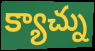
క్యాచ్ను